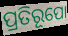
ପ୍ରତିରୂପୋ